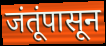
जंतूंपासून